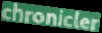
chronicler